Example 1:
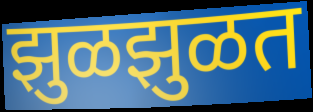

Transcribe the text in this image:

झुळझुळत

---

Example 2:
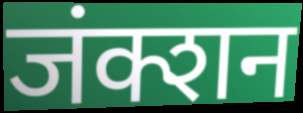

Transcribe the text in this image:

जंक्शन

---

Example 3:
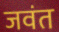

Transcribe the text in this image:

जवंत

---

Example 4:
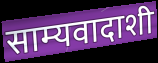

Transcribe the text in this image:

साम्यवादाशी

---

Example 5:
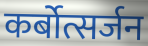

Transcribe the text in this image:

कर्बोत्सर्जन